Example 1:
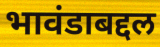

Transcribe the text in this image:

भावंडाबद्दल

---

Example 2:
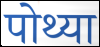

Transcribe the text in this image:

पोथ्या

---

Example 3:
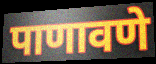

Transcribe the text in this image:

पाणावणे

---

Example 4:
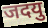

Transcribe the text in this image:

जदयु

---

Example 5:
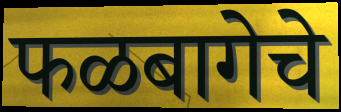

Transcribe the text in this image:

फळबागेचे